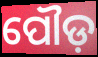
ପୌଡ଼